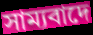
সাম্যবাদে